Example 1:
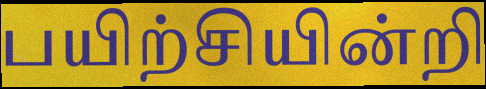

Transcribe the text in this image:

பயிற்சியின்றி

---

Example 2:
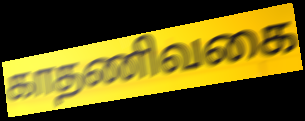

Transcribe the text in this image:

காதணிவகை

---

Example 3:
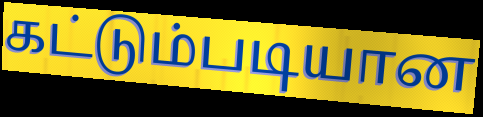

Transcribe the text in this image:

கட்டும்படியான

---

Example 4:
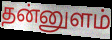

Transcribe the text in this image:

தன்னுளம்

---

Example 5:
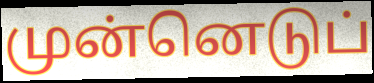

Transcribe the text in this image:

முன்னெடுப்